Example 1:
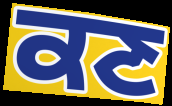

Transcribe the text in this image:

ਕਣ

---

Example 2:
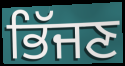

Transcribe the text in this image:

ਭਿੱਜਣ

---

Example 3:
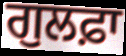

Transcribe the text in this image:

ਗੁਲਫ਼ਾ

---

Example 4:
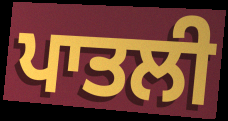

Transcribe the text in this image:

ਪਾਤਲੀ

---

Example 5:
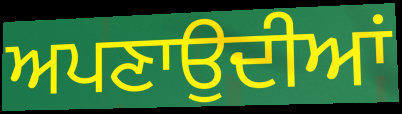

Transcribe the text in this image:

ਅਪਣਾਉਦੀਆਂ